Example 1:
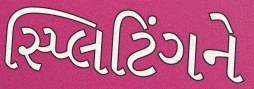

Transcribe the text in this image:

સ્પ્લિટિંગને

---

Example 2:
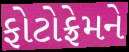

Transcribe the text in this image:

ફોટોફ્રેમને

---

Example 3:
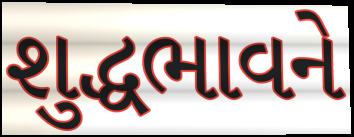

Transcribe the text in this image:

શુદ્ધભાવને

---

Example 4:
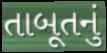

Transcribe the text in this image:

તાબૂતનું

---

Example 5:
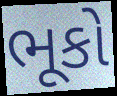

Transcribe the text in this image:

ભૂકો